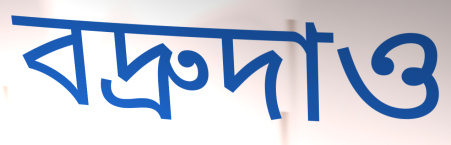
বদ্রুদাও